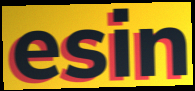
esin